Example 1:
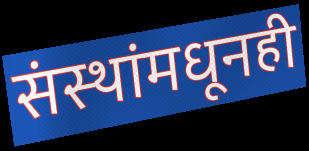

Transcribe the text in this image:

संस्थांमधूनही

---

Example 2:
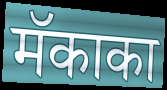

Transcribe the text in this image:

मॅकाका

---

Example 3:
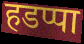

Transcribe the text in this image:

हडप्पा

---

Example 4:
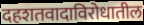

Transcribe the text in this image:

दहशतवादाविरोधातील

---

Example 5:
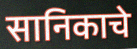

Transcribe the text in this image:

सानिकाचे